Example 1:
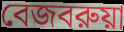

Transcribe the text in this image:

বেজবরুয়া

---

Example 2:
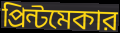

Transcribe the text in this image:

প্রিন্টমেকার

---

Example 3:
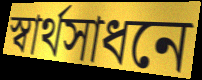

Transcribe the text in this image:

স্বার্থসাধনে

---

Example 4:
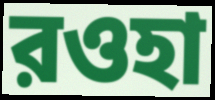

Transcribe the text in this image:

রওহা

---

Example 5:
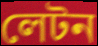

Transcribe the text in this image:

লেটন